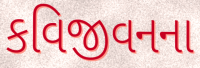
કવિજીવનના